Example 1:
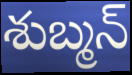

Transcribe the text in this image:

శుబ్మన్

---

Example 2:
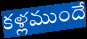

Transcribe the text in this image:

కళ్లముందే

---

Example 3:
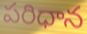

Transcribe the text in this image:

పరిధాన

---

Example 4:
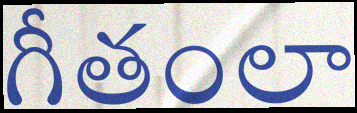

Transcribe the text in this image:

గీతంలా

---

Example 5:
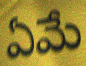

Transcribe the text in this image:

ఏమే